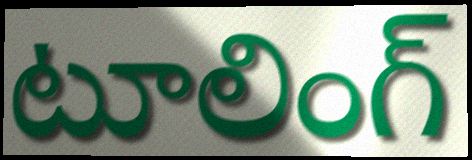
టూలింగ్